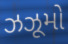
ઝઝૂમો